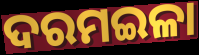
ଦରମଇଳା